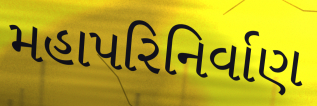
મહાપરિનિર્વાણ